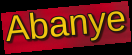
Abanye